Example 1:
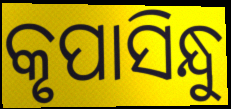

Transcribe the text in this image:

କୃପାସିନ୍ଧୁ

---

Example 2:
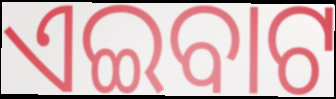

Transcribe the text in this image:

ଏଇବାଟ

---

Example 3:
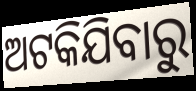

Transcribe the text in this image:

ଅଟକିଯିବାରୁ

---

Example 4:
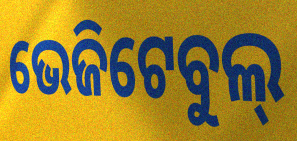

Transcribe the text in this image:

ଭେଜିଟେବୁଲ୍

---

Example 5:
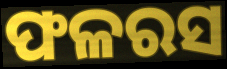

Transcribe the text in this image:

ଫଳରସ